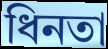
ধিনতা